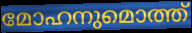
മോഹനുമൊത്ത്